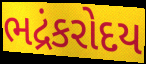
ભદ્રંકરોદય